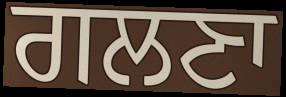
ਗਲਣਾ